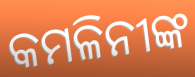
କମଳିନୀଙ୍କ